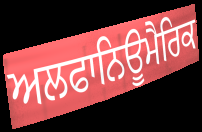
ਅਲਫਾਨਿਊਮੈਰਿਕ